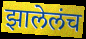
झालेलंच